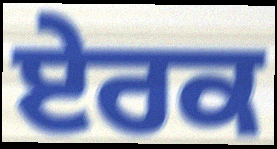
ਏਰਕ